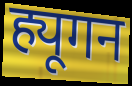
ह्यूगन